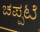
ಚಪ್ಪಟೆ